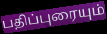
பதிப்புரையும்